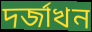
দৰ্জাখন